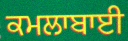
ਕਮਲਾਬਾਈ